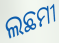
ଲଛମୀ